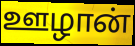
ஊழான்